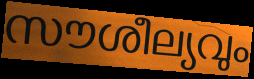
സൗശീല്യവും